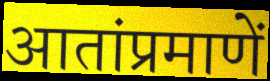
आतांप्रमाणें